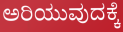
ಅರಿಯುವುದಕ್ಕೆ